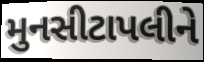
મુનસીટાપલીને